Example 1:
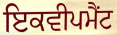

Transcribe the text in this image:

ਇਕਵੀਪਮੈਂਟ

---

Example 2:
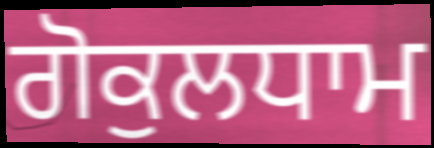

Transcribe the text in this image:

ਗੋਕੁਲਧਾਮ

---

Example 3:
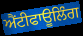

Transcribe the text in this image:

ਐਂਟੀਫਾਊਲਿੰਗ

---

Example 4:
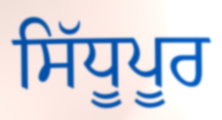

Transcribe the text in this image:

ਸਿੱਧੂਪੂਰ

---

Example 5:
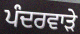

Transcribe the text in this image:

ਪੰਦਰਵਾੜੇ